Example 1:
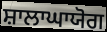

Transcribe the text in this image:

ਸ਼ਾਲਾਘਾਯੋਗ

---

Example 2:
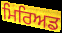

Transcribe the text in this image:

ਮਿਰਿਅਡ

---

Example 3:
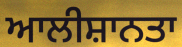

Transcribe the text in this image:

ਆਲੀਸ਼ਾਨਤਾ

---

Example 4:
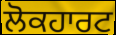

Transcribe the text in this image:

ਲੋਕਹਾਰਟ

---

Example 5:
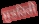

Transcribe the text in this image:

ਸੁਤਹਿਰੀ